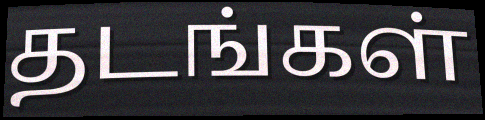
தடங்கள்